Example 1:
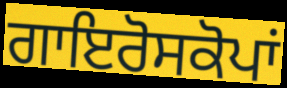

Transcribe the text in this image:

ਗਾਇਰੋਸਕੋਪਾਂ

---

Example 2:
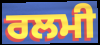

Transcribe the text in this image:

ਰਲਮੀ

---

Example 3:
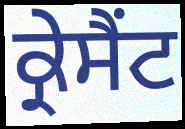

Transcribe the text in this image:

ਕ੍ਰੇਸੈਂਟ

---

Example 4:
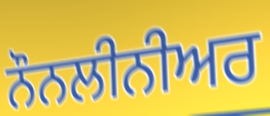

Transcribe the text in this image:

ਨੌਨਲੀਨੀਅਰ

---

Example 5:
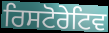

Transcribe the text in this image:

ਰਿਸਟੋਰੇਟਿਵ